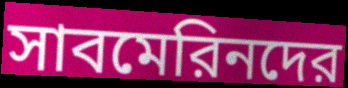
সাবমেরিনদের